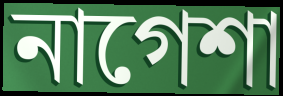
নাগেশা